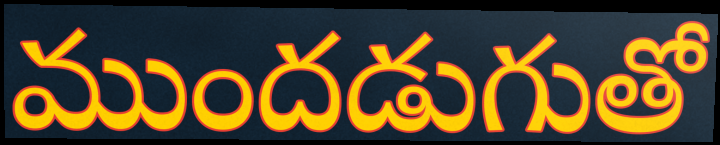
ముందడుగుతో